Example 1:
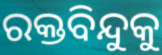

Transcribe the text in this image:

ରକ୍ତବିନ୍ଦୁକୁ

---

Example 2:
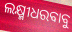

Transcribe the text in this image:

ଲକ୍ଷ୍ମୀଧରବାବୁ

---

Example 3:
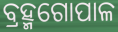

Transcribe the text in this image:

ବ୍ରହ୍ମଗୋପାଳ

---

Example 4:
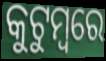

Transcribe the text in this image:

କୁଟୁମ୍ଵରେ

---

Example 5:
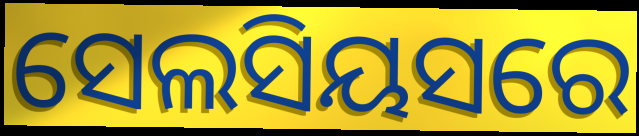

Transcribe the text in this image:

ସେଲସିୟସରେ